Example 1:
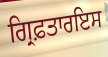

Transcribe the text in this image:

ਗ੍ਰਿਫ਼ਤਾਰਇਸ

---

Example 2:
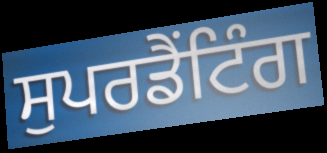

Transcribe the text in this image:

ਸੁਪਰਡੈਂਟਿੰਗ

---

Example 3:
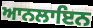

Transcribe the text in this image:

ਆਨਲਾਇਨ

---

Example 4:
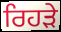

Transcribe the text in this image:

ਰਿਹੜੇ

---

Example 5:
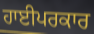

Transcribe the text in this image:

ਹਾਈਪਰਕਾਰ